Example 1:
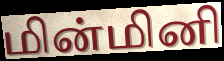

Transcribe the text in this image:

மின்மினி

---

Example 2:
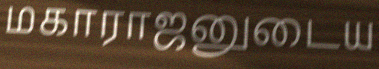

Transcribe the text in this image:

மகாராஜனுடைய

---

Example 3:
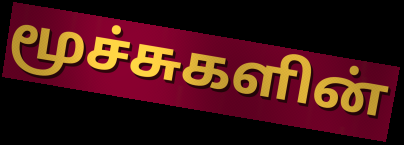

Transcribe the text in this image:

மூச்சுகளின்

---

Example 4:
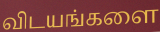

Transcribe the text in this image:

விடயங்களை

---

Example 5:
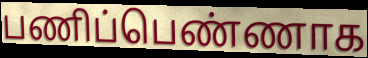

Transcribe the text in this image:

பணிப்பெண்ணாக